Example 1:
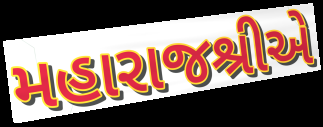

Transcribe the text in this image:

મહારાજશ્રીએ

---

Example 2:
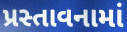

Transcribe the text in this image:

પ્રસ્તાવનામાં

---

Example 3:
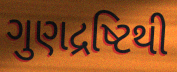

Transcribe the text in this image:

ગુણદ્રષ્ટિથી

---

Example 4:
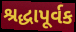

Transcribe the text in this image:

શ્રદ્ધાપૂર્વક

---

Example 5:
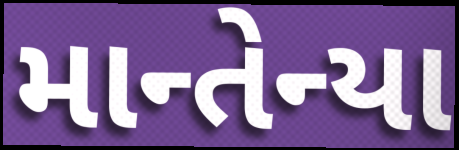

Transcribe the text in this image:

માન્તેન્યા